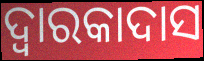
ଦ୍ୱାରକାଦାସ